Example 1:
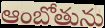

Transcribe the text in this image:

ఆంబోతును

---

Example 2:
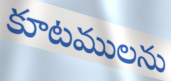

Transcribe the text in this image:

కూటములను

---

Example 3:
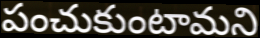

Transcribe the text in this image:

పంచుకుంటామని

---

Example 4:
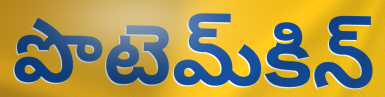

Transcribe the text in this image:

పొటెమ్‌కిన్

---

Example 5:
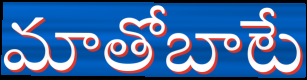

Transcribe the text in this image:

మాతోబాటే